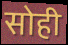
सोही